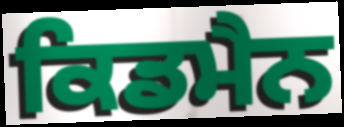
ਕਿਡਮੈਨ